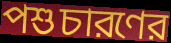
পশুচারণের